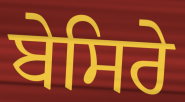
ਬੇਸਿਰੇ